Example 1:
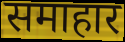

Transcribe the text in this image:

समाहार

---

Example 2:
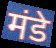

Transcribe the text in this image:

मंडे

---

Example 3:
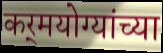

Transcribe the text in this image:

कर्मयोग्यांच्या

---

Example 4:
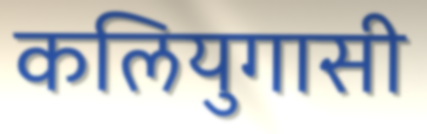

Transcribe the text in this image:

कलियुगासी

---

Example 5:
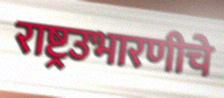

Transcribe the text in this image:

राष्ट्रउभारणीचे